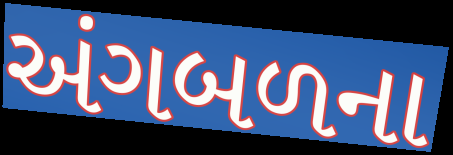
અંગબળના